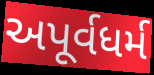
અપૂર્વધર્મ